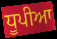
ਧੂਪੀਆ